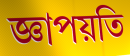
জ্ঞাপয়তি